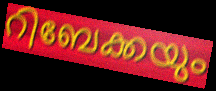
റിബേക്കയും